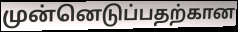
முன்னெடுப்பதற்கான